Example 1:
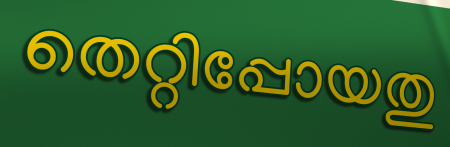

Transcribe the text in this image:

തെറ്റിപ്പോയതു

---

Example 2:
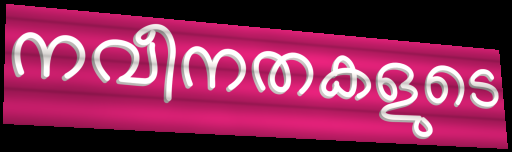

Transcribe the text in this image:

നവീനതകളുടെ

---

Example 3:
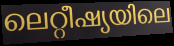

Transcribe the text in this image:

ലെറ്റീഷ്യയിലെ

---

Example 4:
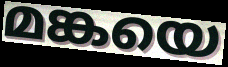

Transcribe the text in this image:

മങ്കയെ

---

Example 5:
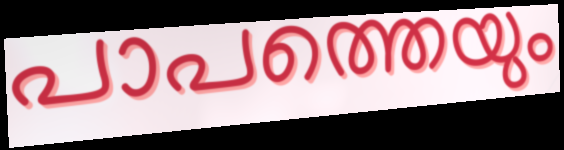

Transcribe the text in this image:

പാപത്തെയും